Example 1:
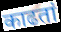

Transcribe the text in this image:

काढतां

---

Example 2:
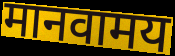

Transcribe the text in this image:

मानवामय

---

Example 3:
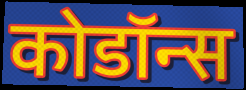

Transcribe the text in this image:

कोडॉन्स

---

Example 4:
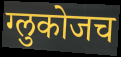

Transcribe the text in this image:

ग्लुकोजच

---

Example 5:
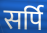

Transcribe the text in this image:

सर्पि